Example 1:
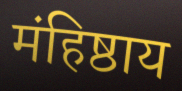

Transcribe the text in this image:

मंहिष्ठाय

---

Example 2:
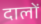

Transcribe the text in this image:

दालों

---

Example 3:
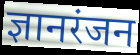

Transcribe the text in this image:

ज्ञानरंजन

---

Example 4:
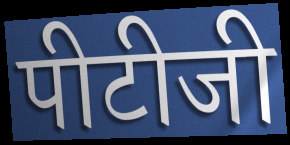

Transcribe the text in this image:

पीटीजी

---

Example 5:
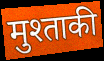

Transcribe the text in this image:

मुश्ताकी